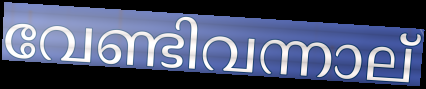
വേണ്ടിവന്നാല്